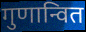
गुणान्वित